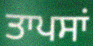
ਤਾਪਸਾਂ